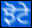
ਝੋਟੇ